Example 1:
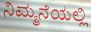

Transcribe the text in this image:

ನಿಮ್ಮನೆಯಲ್ಲಿ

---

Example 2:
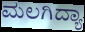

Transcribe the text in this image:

ಮಲಗಿದ್ಯಾ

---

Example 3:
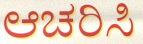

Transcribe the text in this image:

ಆಚರಿಸಿ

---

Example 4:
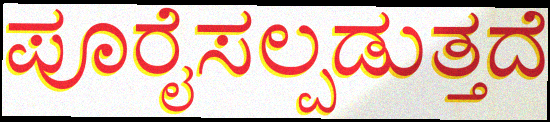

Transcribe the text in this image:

ಪೂರೈಸಲ್ಪಡುತ್ತದೆ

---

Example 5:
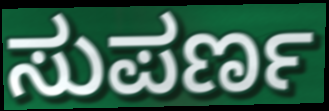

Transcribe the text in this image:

ಸುಪರ್ಣ